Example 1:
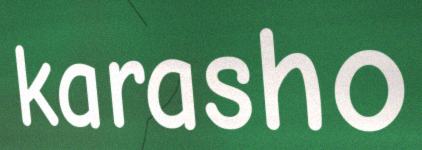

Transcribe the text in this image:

karasho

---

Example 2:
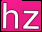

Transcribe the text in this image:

hz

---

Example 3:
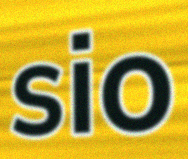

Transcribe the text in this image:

sio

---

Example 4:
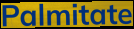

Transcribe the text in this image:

Palmitate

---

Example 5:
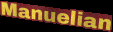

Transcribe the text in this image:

Manuelian